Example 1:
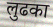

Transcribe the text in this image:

लुढका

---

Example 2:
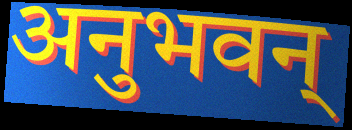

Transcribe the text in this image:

अनुभवन्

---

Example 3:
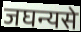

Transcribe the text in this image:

जघन्यसे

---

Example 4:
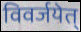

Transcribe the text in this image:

विवर्जयेत्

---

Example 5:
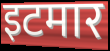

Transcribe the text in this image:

इटमार